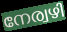
നേര്വഴി